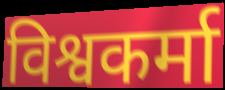
विश्वकर्मा